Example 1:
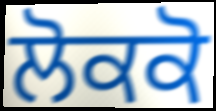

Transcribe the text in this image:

ਲੋਕਕੋ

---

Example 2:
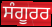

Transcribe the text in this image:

ਸੰਗੂਰਰ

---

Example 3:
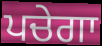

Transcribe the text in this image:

ਪਚੇਗਾ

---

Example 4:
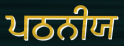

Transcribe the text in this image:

ਪਠਨੀਯ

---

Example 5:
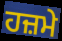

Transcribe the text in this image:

ਹਜ਼ਮੇ